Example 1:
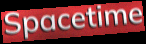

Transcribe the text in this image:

Spacetime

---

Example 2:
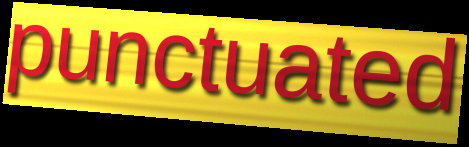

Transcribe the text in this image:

punctuated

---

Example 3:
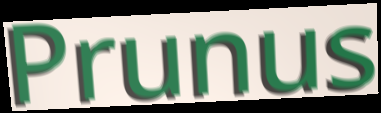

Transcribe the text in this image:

Prunus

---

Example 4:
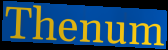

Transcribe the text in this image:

Thenum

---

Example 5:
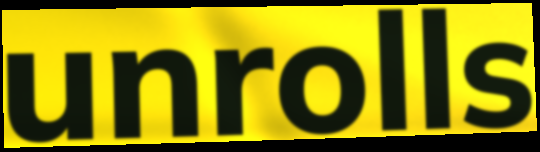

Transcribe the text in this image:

unrolls